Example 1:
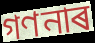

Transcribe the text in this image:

গণনাৰ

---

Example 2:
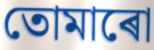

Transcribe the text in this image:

তোমাৰো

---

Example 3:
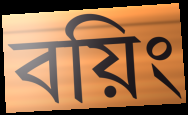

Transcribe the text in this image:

বয়িং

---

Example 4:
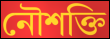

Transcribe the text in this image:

নৌশক্তি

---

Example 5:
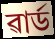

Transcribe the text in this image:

ৱাৰ্ড